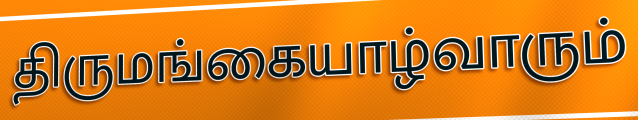
திருமங்கையாழ்வாரும்